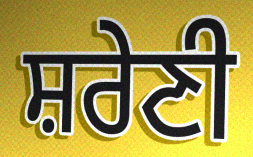
ਸ਼ਰੇਣੀ